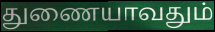
துணையாவதும்